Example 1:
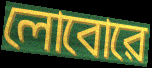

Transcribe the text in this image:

লোবোৱে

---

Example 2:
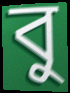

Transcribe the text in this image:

বু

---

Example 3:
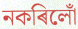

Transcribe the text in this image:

নকৰিলোঁ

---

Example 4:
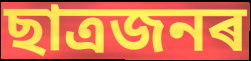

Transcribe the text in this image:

ছাত্ৰজনৰ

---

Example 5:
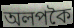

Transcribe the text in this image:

অলপকৈ